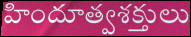
హిందూత్వశక్తులు